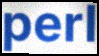
perl